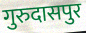
गुरुदासपुर